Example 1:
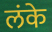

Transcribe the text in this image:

लंके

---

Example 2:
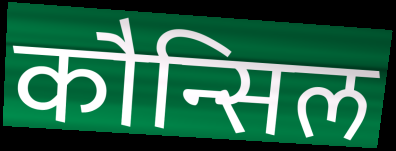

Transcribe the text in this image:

कौन्सिल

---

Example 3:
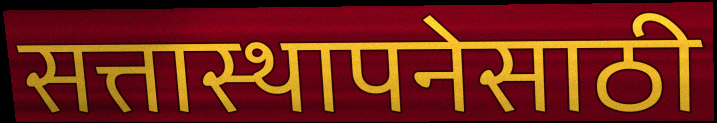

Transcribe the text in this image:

सत्तास्थापनेसाठी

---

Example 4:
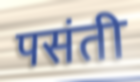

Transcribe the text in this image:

पसंती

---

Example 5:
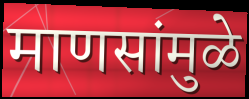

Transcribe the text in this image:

माणसांमुळे